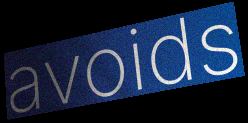
avoids